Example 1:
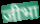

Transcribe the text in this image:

जीभा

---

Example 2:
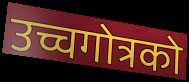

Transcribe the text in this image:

उच्चगोत्रको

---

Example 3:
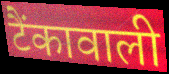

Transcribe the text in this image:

टैंकावाली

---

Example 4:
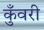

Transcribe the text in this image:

कुँवरी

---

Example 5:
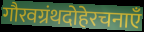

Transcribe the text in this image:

गौरवग्रंथदोहेरचनाएँ